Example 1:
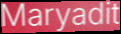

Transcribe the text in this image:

Maryadit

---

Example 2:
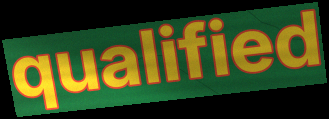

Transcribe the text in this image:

qualified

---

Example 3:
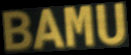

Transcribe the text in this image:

BAMU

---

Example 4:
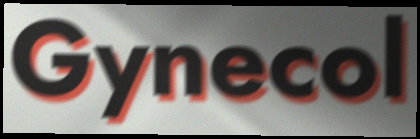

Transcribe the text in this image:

Gynecol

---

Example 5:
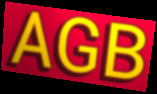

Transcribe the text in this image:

AGB